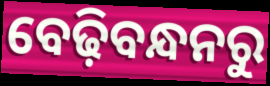
ବେଢ଼ିବନ୍ଧନରୁ